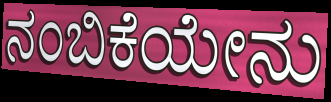
ನಂಬಿಕೆಯೇನು